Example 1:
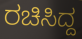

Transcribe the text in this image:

ರಚಿಸಿದ್ದ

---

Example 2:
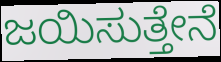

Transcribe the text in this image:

ಜಯಿಸುತ್ತೇನೆ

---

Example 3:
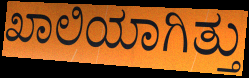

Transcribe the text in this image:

ಖಾಲಿಯಾಗಿತ್ತು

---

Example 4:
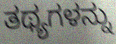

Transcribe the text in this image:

ತಥ್ಯಗಳನ್ನು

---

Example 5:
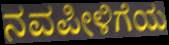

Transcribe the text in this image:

ನವಪೀಳಿಗೆಯ